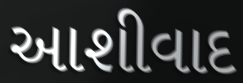
આશીવાદ